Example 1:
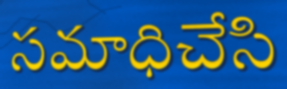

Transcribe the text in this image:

సమాధిచేసి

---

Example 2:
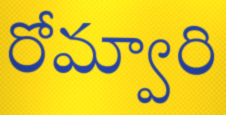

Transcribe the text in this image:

రోమ్వారి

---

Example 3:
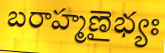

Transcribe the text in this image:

బరాహ్మణైభ్యః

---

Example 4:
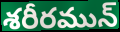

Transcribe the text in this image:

శరీరమున్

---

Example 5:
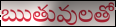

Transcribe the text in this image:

ఋతువులతో